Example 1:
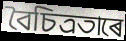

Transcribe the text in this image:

বৈচিত্ৰতাৰে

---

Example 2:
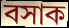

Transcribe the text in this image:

বসাক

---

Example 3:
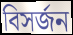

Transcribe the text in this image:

বিসৰ্জন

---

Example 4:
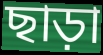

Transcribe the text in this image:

ছাড়া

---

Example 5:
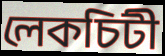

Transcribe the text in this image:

লেকচিটী